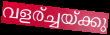
വളര്ച്ചയ്ക്കു